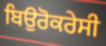
ਬਿਉਰੋਕਰੇਸੀ